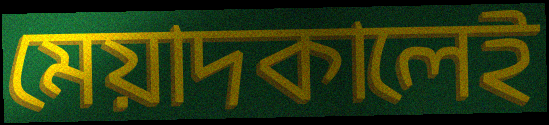
মেয়াদকালেই